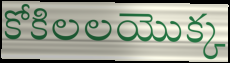
కోకిలలయొక్క